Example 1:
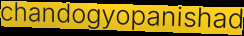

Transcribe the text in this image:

chandogyopanishad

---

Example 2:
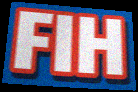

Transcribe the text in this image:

FIH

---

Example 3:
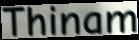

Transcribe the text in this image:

Thinam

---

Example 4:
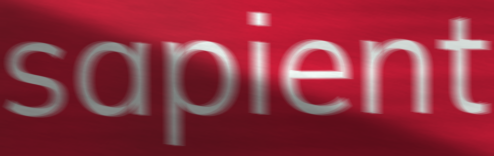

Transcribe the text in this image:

sapient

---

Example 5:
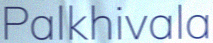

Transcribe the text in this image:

Palkhivala